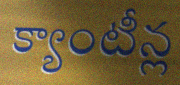
క్యాంటీన్ల